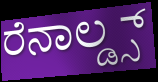
ರೆನಾಲ್ಡ್ಸ್